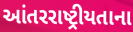
આંતરરાષ્ટ્રીયતાના